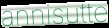
annisutte